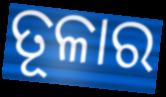
ତୂଳାର